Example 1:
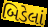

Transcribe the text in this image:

બિડેલાં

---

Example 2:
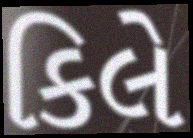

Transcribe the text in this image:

કિલે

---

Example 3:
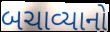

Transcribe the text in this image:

બચાવ્યાનો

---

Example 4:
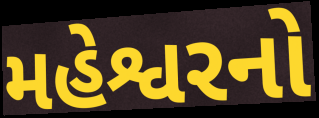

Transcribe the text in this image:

મહેશ્વરનો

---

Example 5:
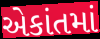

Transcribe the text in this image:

એકાંતમાં